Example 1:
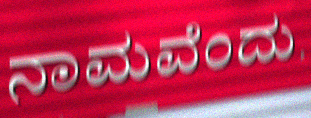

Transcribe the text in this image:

ನಾಮವೆಂದು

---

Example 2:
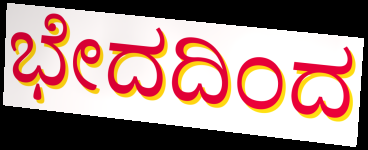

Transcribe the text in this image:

ಭೇದದಿಂದ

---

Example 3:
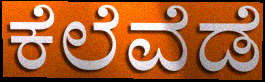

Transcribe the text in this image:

ಕೆಲೆವೆಡೆ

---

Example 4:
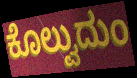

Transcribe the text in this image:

ಕೊಲ್ವುದುಂ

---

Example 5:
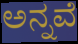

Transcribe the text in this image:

ಅನ್ನವೆ